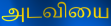
அடவியை